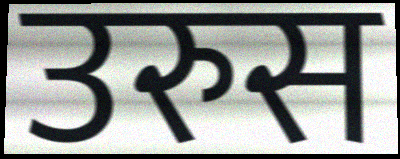
उरुस